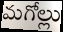
మగోల్లు